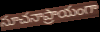
సూచనాప్రాయంగా